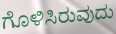
ಗೊಳಿಸಿರುವುದು